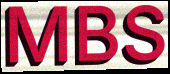
MBS